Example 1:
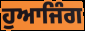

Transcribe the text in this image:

ਹੁਆਜਿੰਗ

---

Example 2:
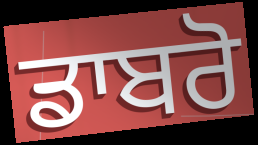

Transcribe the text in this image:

ਡਾਬਰੋ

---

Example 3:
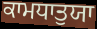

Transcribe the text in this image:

ਕਾਮਧਾਤੁਯਾ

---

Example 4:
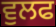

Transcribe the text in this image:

ਵੁਲਫ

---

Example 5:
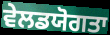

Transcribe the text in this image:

ਵੇਲਡਯੋਗਤਾ